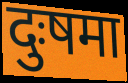
दुःषमा